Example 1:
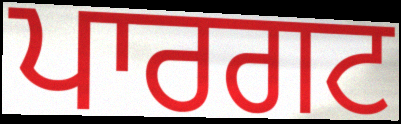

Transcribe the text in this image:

ਪਾਰਗਟ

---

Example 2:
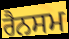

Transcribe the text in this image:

ਰੈਨਸਮ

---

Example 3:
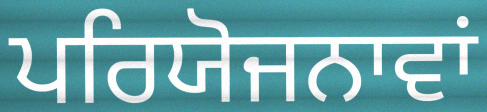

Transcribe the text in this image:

ਪਰਿਯੋਜਨਾਵਾਂ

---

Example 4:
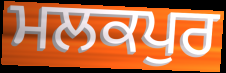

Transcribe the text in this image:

ਮਲਕਪੁਰ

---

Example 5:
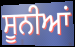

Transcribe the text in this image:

ਸੂਨੀਆਂ